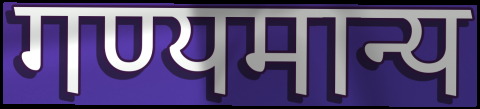
गण्यमान्य